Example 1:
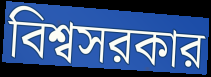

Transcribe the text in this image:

বিশ্বসরকার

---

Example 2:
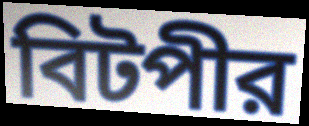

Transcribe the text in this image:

বিটপীর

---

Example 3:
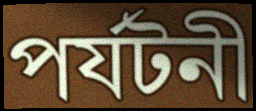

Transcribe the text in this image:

পর্যটনী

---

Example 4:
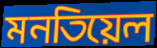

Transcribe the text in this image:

মনতিয়েল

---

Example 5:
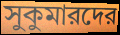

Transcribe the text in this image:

সুকুমারদের